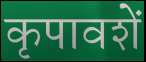
कृपावशें